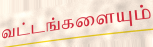
வட்டங்களையும்